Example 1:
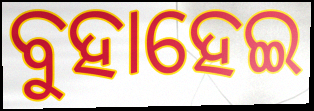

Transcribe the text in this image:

ବୁହାହେଇ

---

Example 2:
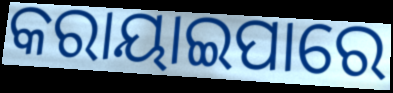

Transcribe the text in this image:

କରାୟାଇପାରେ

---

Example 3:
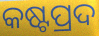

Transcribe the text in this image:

କଷ୍ଟପ୍ରଦ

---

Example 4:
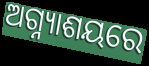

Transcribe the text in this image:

ଅଗ୍ନ୍ୟାଶୟରେ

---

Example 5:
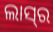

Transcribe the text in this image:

ଲାସ୍‍ର